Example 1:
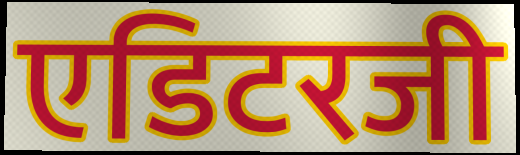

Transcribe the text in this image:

एडिटरजी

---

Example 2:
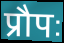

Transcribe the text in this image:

प्रौपः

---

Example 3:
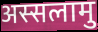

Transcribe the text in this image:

अस्सलामु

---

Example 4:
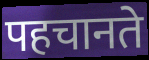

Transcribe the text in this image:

पहचानते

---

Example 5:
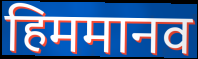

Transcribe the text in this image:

हिममानव